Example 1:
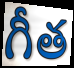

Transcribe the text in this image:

గీత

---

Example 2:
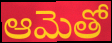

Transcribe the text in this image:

ఆమెతో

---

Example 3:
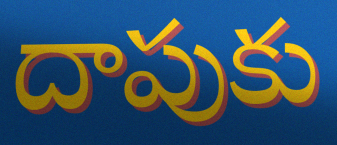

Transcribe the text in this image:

దాపుకు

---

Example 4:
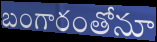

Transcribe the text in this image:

బంగారంతోనూ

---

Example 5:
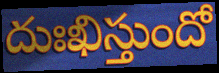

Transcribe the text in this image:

దుఃఖిస్తుందో